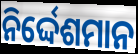
ନିର୍ଦ୍ଦେଶମାନ